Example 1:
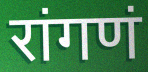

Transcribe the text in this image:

रांगणं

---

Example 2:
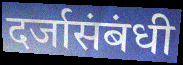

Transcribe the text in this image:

दर्जासंबंधी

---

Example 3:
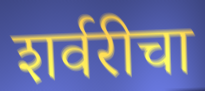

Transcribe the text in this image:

शर्वरीचा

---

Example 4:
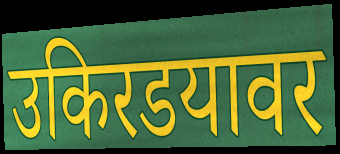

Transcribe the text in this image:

उकिरडयावर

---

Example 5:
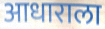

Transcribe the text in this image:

आधाराला